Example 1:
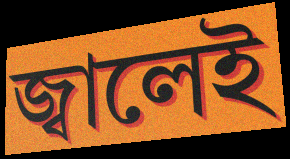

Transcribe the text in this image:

জ্বালেই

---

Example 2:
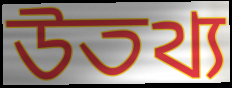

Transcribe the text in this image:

উতথ্য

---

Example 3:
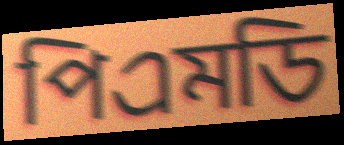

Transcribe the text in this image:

পিএমডি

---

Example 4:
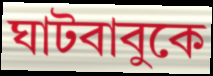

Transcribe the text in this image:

ঘাটবাবুকে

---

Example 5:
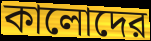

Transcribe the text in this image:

কালোদের